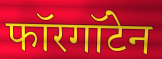
फॉरगॉटेन